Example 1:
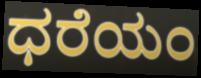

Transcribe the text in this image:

ಧರೆಯಂ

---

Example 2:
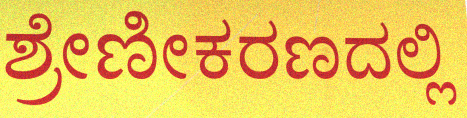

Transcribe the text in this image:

ಶ್ರೇಣೀಕರಣದಲ್ಲಿ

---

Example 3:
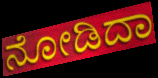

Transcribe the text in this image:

ನೋಡಿದಾ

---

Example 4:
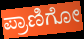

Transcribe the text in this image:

ಪ್ರಾಣಿಗೋ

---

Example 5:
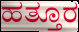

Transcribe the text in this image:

ಹತ್ತೂರ